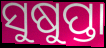
ସୁଷୁପ୍ତା